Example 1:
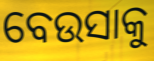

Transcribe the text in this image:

ବେଉସାକୁ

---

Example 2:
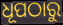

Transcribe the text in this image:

ଧୂପଠାରୁ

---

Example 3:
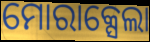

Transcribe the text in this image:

ମୋରାକ୍ସେଲା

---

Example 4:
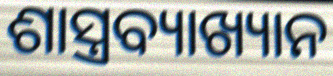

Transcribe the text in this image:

ଶାସ୍ତ୍ରବ୍ୟାଖ୍ୟାନ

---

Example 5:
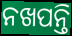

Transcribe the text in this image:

ନଖପନ୍ତି